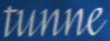
tunne